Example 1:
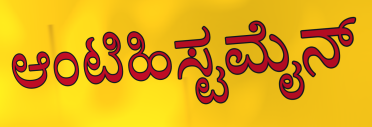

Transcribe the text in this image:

ಆಂಟಿಹಿಸ್ಟಮೈನ್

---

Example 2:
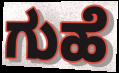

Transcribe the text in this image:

ಗುಹೆ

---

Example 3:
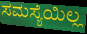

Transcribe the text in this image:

ಸಮಸ್ಯೆಯಿಲ್ಲ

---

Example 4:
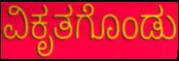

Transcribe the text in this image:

ವಿಕೃತಗೊಂಡು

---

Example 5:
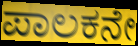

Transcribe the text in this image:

ಪಾಲಕನೇ